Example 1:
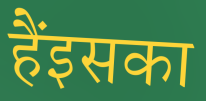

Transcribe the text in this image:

हैंइसका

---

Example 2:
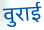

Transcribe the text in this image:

वुराई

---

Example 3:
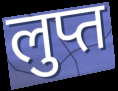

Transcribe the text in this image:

लुप्‍त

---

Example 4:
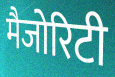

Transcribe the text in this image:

मैजोरिटी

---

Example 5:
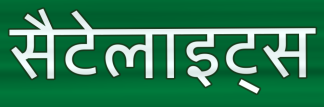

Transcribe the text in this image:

सैटेलाइट्स